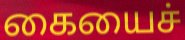
கையைச்